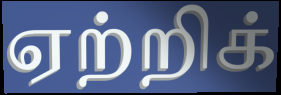
ஏற்றிக்